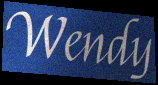
Wendy